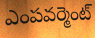
ఎంపవర్మెంట్